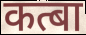
कत्बा